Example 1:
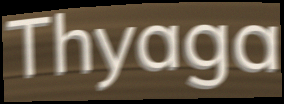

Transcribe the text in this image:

Thyaga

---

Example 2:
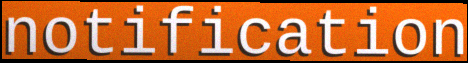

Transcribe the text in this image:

notification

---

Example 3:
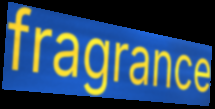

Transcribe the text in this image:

fragrance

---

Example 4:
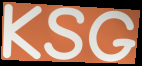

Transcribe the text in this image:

KSG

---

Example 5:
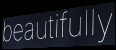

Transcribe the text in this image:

beautifully